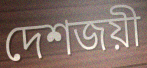
দেশজয়ী